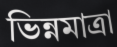
ভিন্নমাত্রা